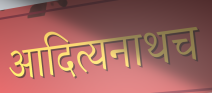
आदित्यनाथच